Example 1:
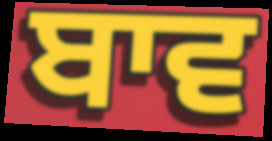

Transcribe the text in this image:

ਬਾਵ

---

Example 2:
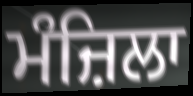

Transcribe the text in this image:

ਮੰਜ਼ਿਲਾ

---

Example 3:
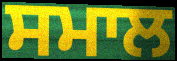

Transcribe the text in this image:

ਸਮਾਲ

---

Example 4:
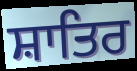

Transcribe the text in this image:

ਸ਼ਾਤਿਰ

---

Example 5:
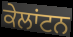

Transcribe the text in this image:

ਕੇਲਾਂਟਨ